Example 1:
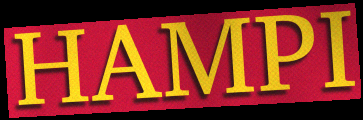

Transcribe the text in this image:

HAMPI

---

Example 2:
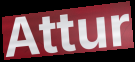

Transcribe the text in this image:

Attur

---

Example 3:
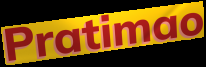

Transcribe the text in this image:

Pratimao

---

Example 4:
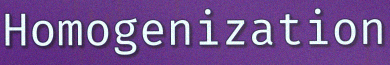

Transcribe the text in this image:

Homogenization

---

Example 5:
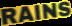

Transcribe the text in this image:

RAINS